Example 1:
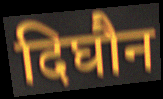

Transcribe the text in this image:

दिघौन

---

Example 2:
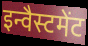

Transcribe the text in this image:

इन्वैस्टमेंट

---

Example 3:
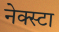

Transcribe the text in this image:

नेक्स्टा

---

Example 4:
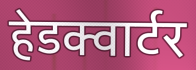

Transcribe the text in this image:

हेडक्वार्टर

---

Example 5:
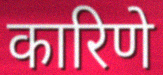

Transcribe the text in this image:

कारिणे